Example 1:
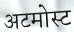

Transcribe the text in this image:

अटमोस्ट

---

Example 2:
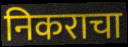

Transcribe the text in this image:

निकराचा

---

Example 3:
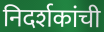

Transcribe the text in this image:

निदर्शकांची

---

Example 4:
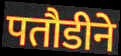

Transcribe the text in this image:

पतौडीने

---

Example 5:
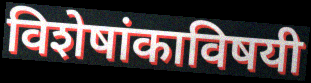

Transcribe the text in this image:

विशेषांकाविषयी